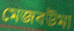
মেজবউমা